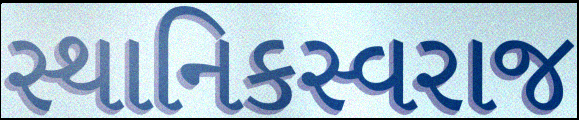
સ્થાનિકસ્વરાજ